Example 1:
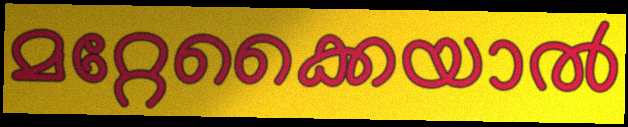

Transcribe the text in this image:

മറ്റേക്കൈയാൽ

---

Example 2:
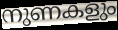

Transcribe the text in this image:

നുണകളും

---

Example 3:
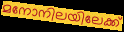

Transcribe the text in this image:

മനോനിലയിലേക്ക്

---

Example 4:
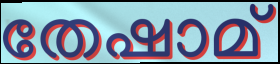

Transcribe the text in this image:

തേഷാമ്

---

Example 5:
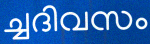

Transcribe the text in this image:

ച്ചദിവസം